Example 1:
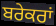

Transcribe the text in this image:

ਬਰੇਕਰਾਂ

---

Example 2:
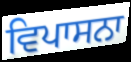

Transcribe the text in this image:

ਵਿਪਾਸਨਾ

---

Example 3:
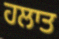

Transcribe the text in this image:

ਹਲਾਤ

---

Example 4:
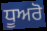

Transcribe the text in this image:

ਧੂਅਰੋ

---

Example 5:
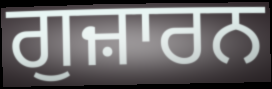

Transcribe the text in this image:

ਗੁਜ਼ਾਰਨ